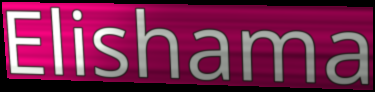
Elishama